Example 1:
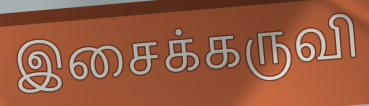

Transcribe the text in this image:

இசைக்கருவி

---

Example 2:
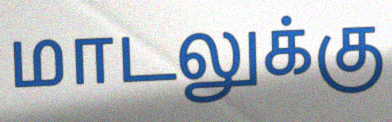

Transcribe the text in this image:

மாடலுக்கு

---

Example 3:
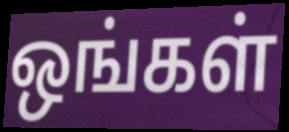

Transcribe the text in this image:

ஒங்கள்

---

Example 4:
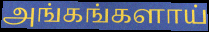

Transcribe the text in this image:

அங்கங்களாய்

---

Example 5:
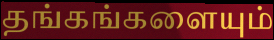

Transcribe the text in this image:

தங்கங்களையும்